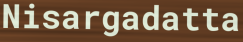
Nisargadatta